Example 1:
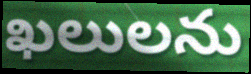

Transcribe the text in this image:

ఖలులను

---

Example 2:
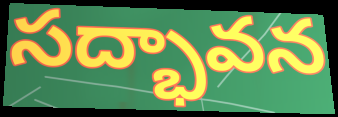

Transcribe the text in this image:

సద్భావన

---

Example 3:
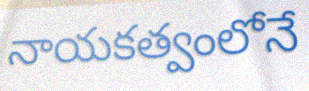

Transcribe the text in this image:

నాయకత్వంలోనే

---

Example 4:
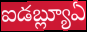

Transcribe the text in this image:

ఐడబ్ల్యూఏ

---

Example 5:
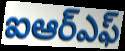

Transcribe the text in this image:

ఐఆర్ఎఫ్